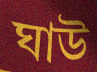
ঘাউ